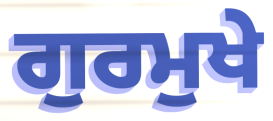
ਗੁਰਮੁਖੇ